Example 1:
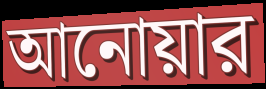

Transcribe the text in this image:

আনোয়ার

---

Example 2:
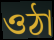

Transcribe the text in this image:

ওঠা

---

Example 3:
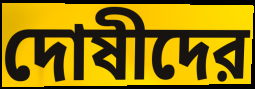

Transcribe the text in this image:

দোষীদের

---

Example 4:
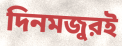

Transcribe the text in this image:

দিনমজুরই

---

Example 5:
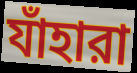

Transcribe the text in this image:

যাঁহারা